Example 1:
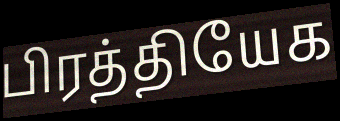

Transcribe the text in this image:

பிரத்தியேக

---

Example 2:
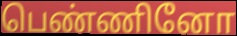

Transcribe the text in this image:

பெண்ணினோ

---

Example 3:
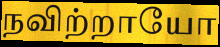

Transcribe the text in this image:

நவிற்றாயோ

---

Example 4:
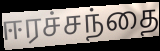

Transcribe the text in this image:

ஈரச்சந்தை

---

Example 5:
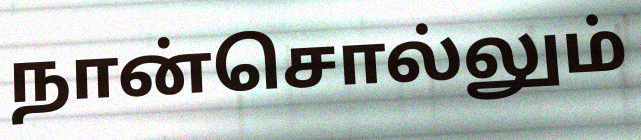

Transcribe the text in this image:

நான்சொல்லும்